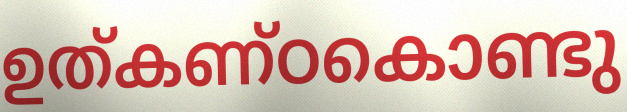
ഉത്കണ്ഠകൊണ്ടു